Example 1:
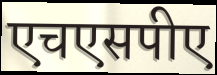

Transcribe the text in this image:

एचएसपीए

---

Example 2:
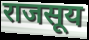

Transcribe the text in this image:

राजसूय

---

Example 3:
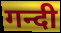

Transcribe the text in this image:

गन्दी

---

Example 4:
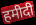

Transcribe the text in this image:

हमीदी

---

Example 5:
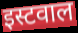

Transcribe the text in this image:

इस्टवाल